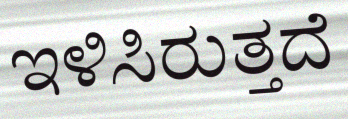
ಇಳಿಸಿರುತ್ತದೆ